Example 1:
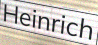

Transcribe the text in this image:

Heinrich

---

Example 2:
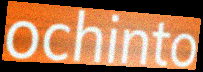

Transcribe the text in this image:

ochinto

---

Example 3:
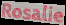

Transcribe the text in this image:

Rosalie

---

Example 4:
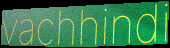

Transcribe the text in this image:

vachhindi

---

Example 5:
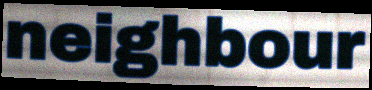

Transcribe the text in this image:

neighbour